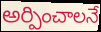
అర్పించాలనే